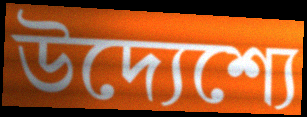
উদ্যেশ্যে